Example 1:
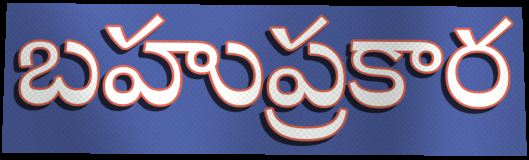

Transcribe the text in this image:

బహుప్రకార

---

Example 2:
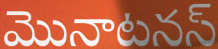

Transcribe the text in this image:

మొనాటనస్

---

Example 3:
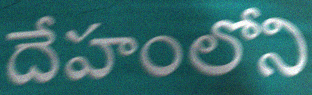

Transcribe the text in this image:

దేహంలోని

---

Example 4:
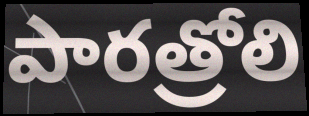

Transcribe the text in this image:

పారత్రోలి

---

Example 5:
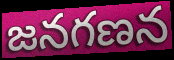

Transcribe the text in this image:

జనగణన